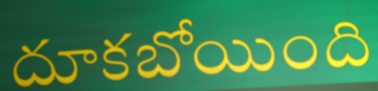
దూకబోయింది